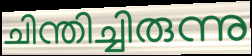
ചിന്തിച്ചിരുന്നു